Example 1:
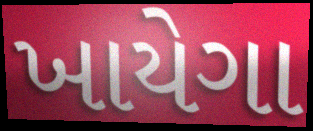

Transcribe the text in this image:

ખાયેગા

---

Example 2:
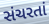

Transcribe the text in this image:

સંચરતાં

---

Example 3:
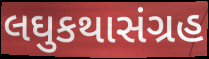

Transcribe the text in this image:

લઘુકથાસંગ્રહ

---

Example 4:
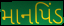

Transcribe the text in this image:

માનપિંડ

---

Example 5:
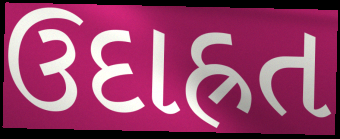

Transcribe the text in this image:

ઉદાહ્રત